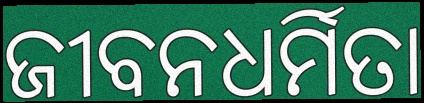
ଜୀବନଧର୍ମିତା